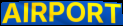
AIRPORT